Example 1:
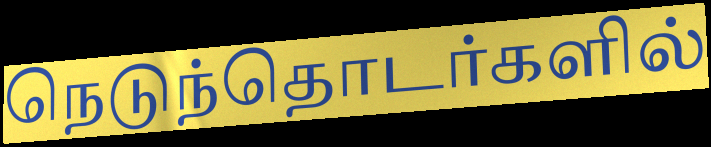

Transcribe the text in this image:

நெடுந்தொடர்களில்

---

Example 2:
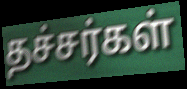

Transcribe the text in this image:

தச்சர்கள்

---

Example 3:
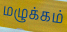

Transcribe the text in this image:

மழுக்கம்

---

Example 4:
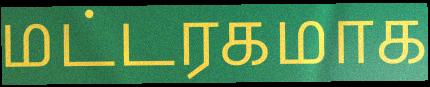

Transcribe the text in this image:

மட்டரகமாக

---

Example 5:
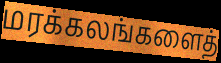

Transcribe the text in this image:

மரக்கலங்களைத்